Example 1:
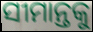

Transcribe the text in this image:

ସୀମାନ୍ତକୁ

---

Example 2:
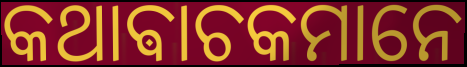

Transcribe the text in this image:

କଥାଵାଚକମାନେ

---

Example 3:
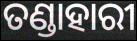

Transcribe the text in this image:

ତଣ୍ଡାହାରୀ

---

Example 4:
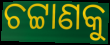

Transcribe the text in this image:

ଚଟ୍ଟାଣକୁ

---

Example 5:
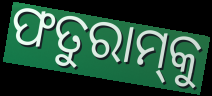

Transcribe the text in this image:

ଫତୁରାମ୍‌କୁ